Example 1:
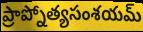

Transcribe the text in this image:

ప్రాప్నోత్యసంశయమ్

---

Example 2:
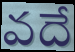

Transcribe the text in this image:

వదే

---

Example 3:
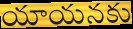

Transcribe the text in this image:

యాయనకు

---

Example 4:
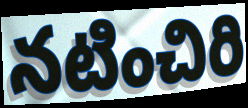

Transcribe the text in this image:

నటించిరి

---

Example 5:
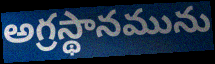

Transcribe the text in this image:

అగ్రస్థానమును